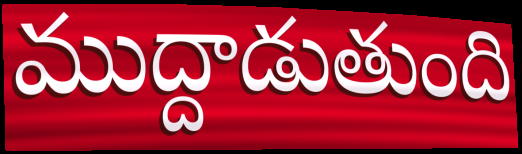
ముద్దాడుతుంది